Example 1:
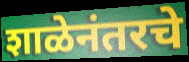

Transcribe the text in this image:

शाळेनंतरचे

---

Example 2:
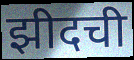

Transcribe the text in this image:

झीदची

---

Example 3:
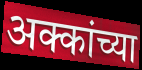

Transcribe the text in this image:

अक्कांच्या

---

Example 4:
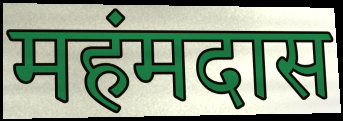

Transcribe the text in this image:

महंमदास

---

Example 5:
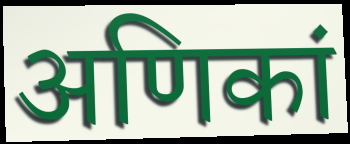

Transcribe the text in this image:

अणिकां